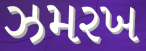
ઝમરખ